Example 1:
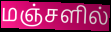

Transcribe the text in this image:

மஞ்சளில்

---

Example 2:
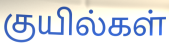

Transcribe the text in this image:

குயில்கள்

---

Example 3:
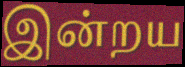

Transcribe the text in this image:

இன்றய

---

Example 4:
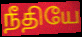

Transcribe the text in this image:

நீதியே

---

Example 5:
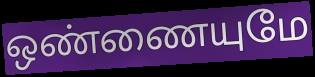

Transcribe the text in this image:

ஒண்ணையுமே